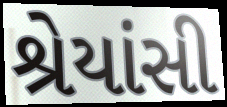
શ્રેયાંસી